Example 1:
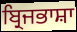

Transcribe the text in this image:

ਬ੍ਰਿਜਭਾਸ਼ਾ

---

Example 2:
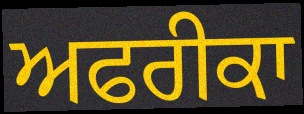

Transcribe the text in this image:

ਅਫਰੀਕਾ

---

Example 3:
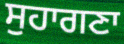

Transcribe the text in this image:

ਸੁਹਾਗਣਾ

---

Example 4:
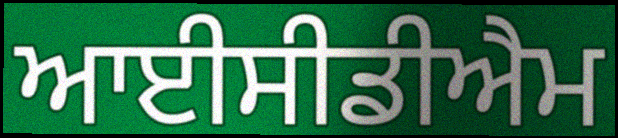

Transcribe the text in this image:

ਆਈਸੀਡੀਐਮ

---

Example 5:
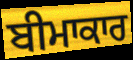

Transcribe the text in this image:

ਬੀਮਾਕਾਰ